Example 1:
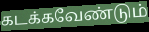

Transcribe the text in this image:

கடக்கவேண்டும்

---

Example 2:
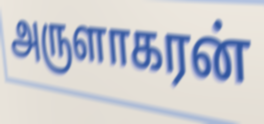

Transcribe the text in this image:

அருளாகரன்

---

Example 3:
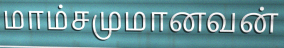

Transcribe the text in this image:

மாம்சமுமானவன்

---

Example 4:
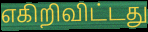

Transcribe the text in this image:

எகிறிவிட்டது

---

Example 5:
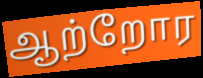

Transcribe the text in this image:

ஆற்றோர